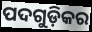
ପଦଗୁଡ଼ିକର